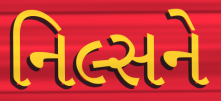
નિલ્સને